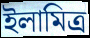
ইলামিত্র